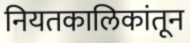
नियतकालिकांतून